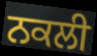
ਨਕਲੀ